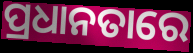
ପ୍ରଧାନତାରେ